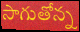
సాగుతోన్న